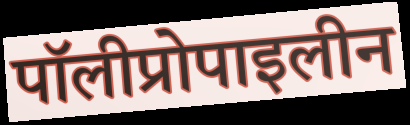
पॉलीप्रोपाइलीन